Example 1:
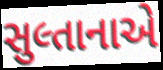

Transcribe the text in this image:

સુલ્તાનાએ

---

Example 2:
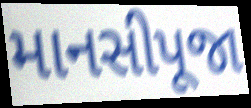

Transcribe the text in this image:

માનસીપૂજા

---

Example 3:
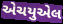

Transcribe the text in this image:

એચયુએલ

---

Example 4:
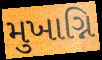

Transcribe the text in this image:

મુખાગ્નિ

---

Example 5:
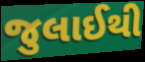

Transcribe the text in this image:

જુલાઈથી